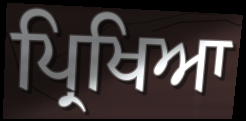
ਪ੍ਰਿਖਿਆ